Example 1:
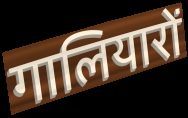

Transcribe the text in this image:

गालियारों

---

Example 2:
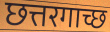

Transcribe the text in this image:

छत्तरगाच्छ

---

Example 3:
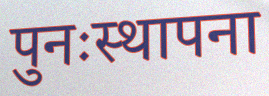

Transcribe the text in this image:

पुनःस्थापना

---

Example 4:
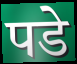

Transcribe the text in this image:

पडे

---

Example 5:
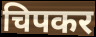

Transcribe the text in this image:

चिपकर